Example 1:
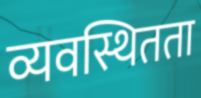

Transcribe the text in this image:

व्यवस्थितता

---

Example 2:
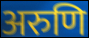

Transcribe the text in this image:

अरुणि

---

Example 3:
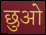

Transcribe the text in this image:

छुओ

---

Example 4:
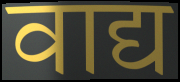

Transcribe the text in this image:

वाद्य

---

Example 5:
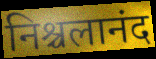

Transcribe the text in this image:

निश्चलानंद